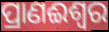
ପ୍ରାଣଈଶ୍ୱର